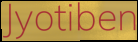
Jyotiben